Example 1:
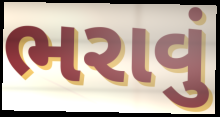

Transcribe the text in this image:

ભરાવું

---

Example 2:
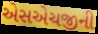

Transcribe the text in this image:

એસએચજીની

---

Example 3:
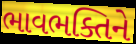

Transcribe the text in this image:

ભાવભક્તિને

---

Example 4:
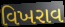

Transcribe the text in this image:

વિખરાવ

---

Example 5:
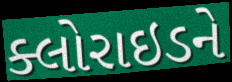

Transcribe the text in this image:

ક્લોરાઇડને